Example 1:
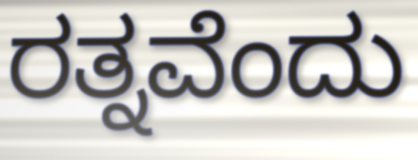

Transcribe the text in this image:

ರತ್ನವೆಂದು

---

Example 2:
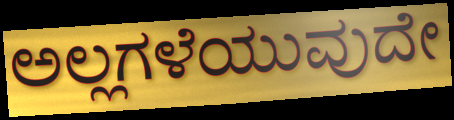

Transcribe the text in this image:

ಅಲ್ಲಗಳೆಯುವುದೇ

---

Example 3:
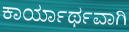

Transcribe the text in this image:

ಕಾರ್ಯಾರ್ಥವಾಗಿ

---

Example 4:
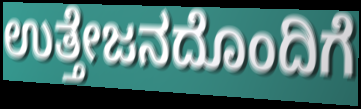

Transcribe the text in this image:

ಉತ್ತೇಜನದೊಂದಿಗೆ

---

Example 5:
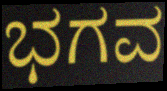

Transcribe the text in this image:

ಭಗವ